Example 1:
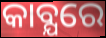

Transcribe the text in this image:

କାବ୍ଯରେ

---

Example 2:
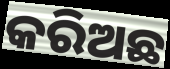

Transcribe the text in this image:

କରିଅଛ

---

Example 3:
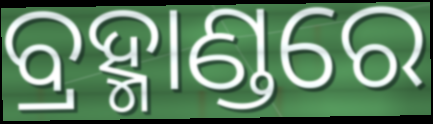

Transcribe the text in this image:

ବ୍ରହ୍ମାଣ୍ଡରେ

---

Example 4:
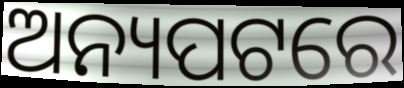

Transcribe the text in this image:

ଅନ୍ୟପଟରେ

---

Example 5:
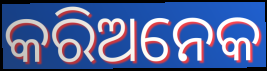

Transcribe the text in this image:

କରିଅନେକ